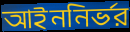
আইননির্ভর